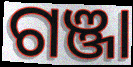
ଗଞ୍ଜା